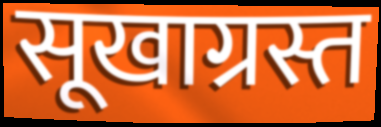
सूखाग्रस्त